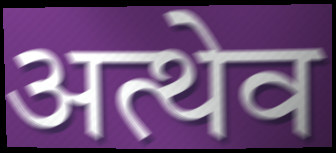
अत्थेव